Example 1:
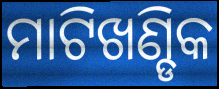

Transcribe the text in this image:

ମାଟିଖଣ୍ଡିକ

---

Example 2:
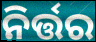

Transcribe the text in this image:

ନିର୍ତ୍ତର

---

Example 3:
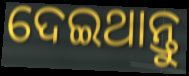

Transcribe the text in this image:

ଦେଇଥାନ୍ତୁ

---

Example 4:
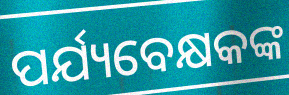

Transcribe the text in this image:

ପର୍ଯ୍ୟବେକ୍ଷକଙ୍କ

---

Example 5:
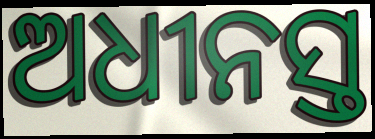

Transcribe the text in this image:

ଅଧୀନସ୍ତ